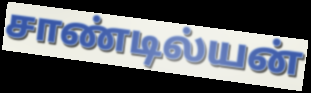
சாண்டில்யன்